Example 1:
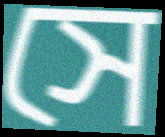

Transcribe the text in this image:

সে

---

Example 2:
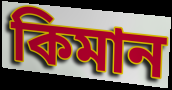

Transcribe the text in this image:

কিমান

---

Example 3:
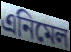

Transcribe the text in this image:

এনিমেল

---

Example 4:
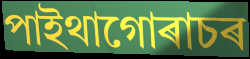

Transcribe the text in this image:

পাইথাগোৰাচৰ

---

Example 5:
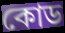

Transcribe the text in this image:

কোড